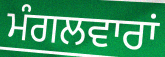
ਮੰਗਲਵਾਰਾਂ